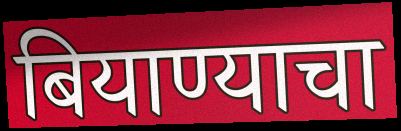
बियाण्याचा